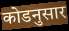
कोडनुसार